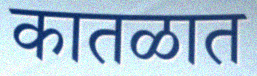
कातळात